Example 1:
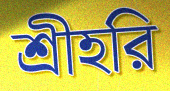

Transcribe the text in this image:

শ্রীহরি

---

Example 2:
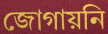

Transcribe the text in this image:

জোগায়নি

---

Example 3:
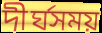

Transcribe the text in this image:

দীর্ঘসময়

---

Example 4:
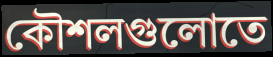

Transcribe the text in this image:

কৌশলগুলোতে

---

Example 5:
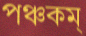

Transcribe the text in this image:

পঞ্চকম্